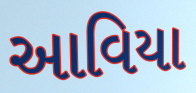
આવિયા